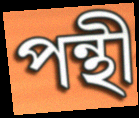
পন্থী